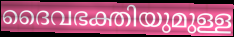
ദൈവഭക്തിയുമുള്ള